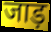
जाड़